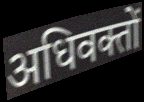
अधिवक्तों